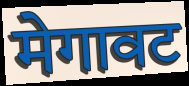
मेगावट